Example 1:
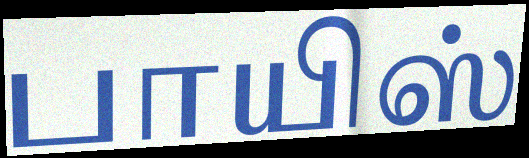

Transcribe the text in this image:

பாயிஸ்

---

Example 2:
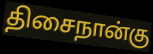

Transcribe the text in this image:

திசைநான்கு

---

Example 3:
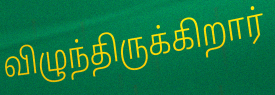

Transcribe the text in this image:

விழுந்திருக்கிறார்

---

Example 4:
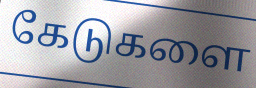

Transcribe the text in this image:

கேடுகளை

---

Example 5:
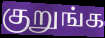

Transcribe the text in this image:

குறுங்க